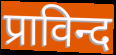
प्राविन्द